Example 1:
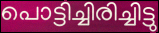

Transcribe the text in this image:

പൊട്ടിച്ചിരിച്ചിട്ടു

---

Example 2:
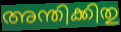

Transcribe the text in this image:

അന്തിക്കിതു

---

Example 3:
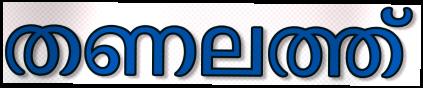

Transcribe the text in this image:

തണലത്ത്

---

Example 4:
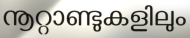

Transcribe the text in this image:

നൂറ്റാണ്ടുകളിലും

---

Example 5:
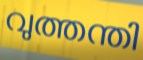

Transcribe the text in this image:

വുത്തന്തി